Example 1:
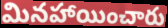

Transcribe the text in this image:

మినహాయించారు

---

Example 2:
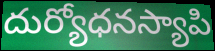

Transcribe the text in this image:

దుర్యోధనస్యాపి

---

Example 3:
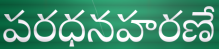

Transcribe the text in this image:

పరధనహరణే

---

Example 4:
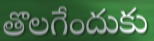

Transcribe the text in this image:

తొలగేందుకు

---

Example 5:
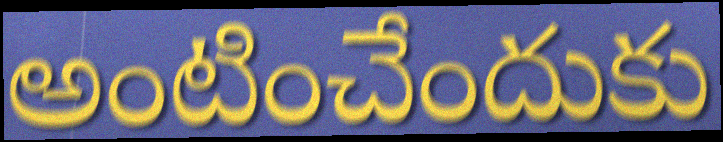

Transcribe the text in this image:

అంటించేందుకు